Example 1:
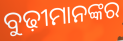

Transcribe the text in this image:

ବୁଢ଼ୀମାନଙ୍କର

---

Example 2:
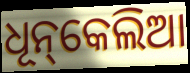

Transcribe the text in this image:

ଧୂନ୍‌କେଲିଆ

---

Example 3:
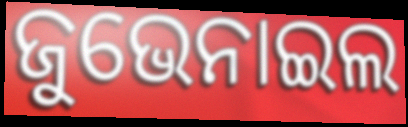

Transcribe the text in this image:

ଜୁଭେନାଇଲ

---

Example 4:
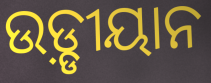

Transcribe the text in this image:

ଉଡ଼୍ଡୀୟାନ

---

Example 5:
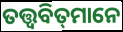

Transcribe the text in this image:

ତତ୍ତ୍ୱବିତ୍‌ମାନେ